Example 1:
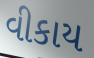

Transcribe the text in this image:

વીકાય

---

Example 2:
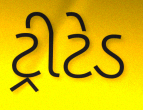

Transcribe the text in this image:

ટ્રીટેડ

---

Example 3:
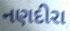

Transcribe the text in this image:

નણદીરા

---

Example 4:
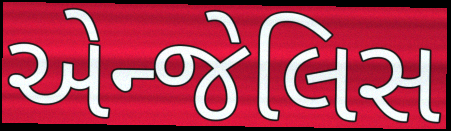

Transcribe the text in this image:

એન્જેલિસ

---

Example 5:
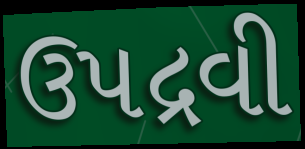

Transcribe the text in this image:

ઉપદ્રવી